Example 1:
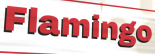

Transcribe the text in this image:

Flamingo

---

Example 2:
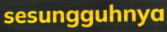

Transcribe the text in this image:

sesungguhnya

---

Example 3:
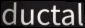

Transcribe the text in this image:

ductal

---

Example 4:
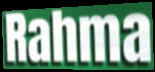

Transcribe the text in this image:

Rahma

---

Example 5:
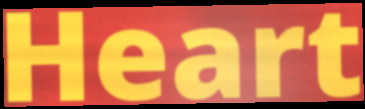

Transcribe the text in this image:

Heart